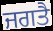
ਜਗਤੈ